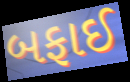
બફાઈ